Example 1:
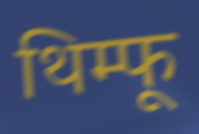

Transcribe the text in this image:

थिम्फू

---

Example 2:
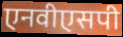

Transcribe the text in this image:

एनवीएसपी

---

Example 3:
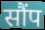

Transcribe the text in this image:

सौंप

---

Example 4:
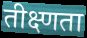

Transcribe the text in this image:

तीक्ष्णता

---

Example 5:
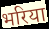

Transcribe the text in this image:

भरिया